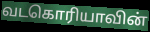
வடகொரியாவின்